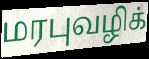
மரபுவழிக்